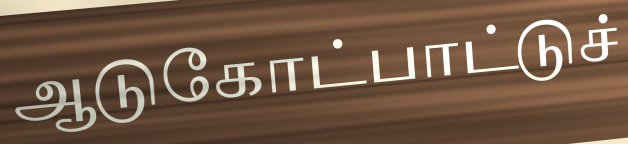
ஆடுகோட்பாட்டுச்